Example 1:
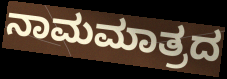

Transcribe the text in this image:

ನಾಮಮಾತ್ರದ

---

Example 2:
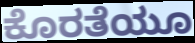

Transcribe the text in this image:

ಕೊರತೆಯೂ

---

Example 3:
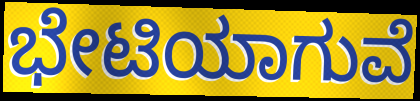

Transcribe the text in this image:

ಭೇಟಿಯಾಗುವೆ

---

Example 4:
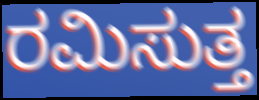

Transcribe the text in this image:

ರಮಿಸುತ್ತ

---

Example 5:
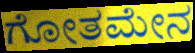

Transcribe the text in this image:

ಗೋತಮೇನ